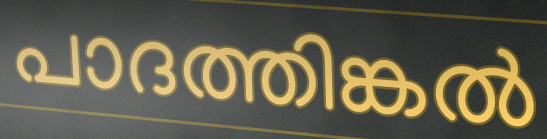
പാദത്തിങ്കൽ